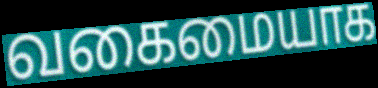
வகைமையாக